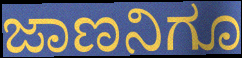
ಜಾಣನಿಗೂ